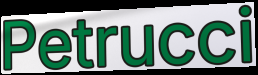
Petrucci